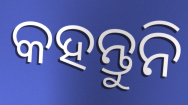
କହନ୍ତୁନି